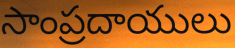
సాంప్రదాయులు